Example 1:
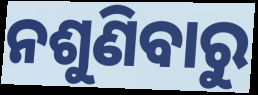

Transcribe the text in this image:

ନଶୁଣିବାରୁ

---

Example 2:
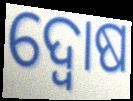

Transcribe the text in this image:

ଦ୍ୱୋଷ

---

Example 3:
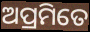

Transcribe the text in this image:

ଅପ୍ରମିତେ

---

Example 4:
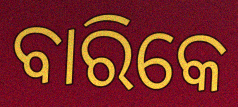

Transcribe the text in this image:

ବାରିକେ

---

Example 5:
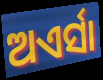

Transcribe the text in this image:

ଅଏର୍ସା